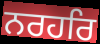
ਨਰਹਰਿ